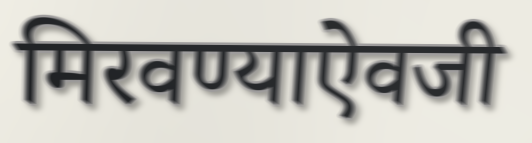
मिरवण्याऐवजी